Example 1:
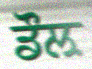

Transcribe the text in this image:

ਡੌਲ਼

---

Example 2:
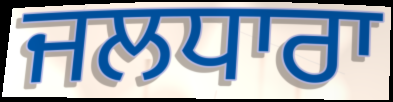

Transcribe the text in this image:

ਜਲਧਾਰਾ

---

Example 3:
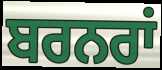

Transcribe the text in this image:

ਬਰਨਰਾਂ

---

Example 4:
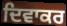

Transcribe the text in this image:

ਦਿਵਾਕਰ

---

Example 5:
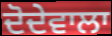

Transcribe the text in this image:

ਦੋਦੇਵਾਲਾ